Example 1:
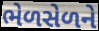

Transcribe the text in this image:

ભેળસેળને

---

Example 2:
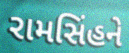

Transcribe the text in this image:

રામસિંહને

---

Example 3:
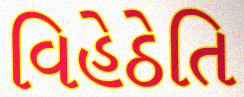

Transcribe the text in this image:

વિહેઠેતિ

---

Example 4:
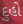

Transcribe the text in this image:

દુહો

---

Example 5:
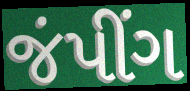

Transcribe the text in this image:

જંપીંગ